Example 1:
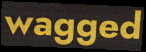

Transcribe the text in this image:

wagged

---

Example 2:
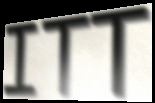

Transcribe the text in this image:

ITT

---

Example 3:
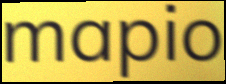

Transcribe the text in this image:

mapio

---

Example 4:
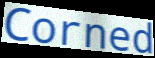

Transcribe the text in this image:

Corned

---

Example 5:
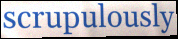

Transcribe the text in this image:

scrupulously